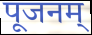
पूजनम्